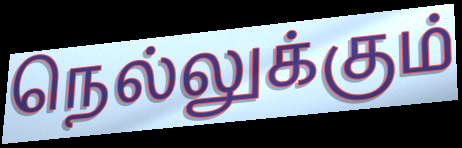
நெல்லுக்கும்